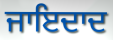
ਜਾਇਦਾਦ